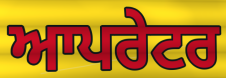
ਆਪਰੇਟਰ